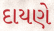
દાયણે